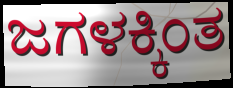
ಜಗಳಕ್ಕಿಂತ